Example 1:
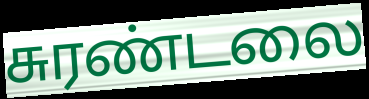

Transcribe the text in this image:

சுரண்டலை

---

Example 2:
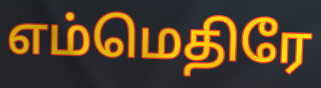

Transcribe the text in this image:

எம்மெதிரே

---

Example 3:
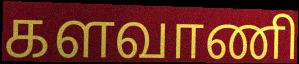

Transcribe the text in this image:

களவாணி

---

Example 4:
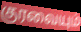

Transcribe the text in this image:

குரவையும்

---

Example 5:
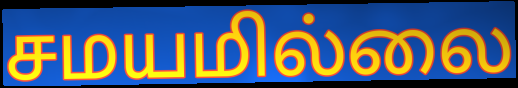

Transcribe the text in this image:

சமயமில்லை